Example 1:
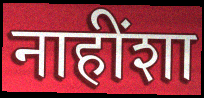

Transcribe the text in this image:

नाहींशा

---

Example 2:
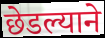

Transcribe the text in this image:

छेडल्याने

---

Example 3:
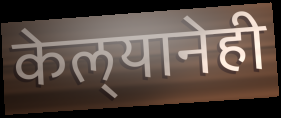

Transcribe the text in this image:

केल्यानेही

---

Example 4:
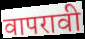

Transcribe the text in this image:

वापरावी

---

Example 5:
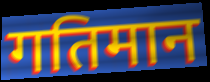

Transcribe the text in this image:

गतिमान